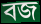
বজ